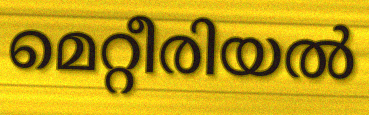
മെറ്റീരിയൽ